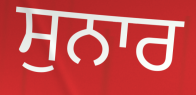
ਸੁਨਾਰ